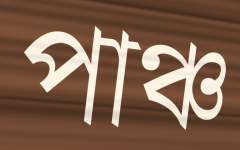
পাঞ্চ